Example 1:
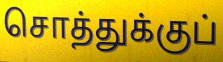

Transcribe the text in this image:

சொத்துக்குப்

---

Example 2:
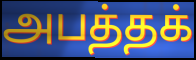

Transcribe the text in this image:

அபத்தக்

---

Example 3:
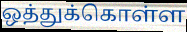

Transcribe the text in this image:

ஒத்துக்கொள்ள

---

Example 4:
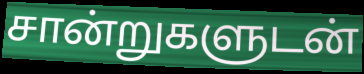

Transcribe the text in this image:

சான்றுகளுடன்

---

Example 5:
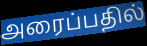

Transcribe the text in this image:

அரைப்பதில்